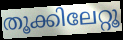
തൂക്കിലേറ്റൂ